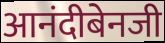
आनंदीबेनजी